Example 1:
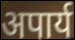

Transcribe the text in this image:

अपार्य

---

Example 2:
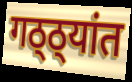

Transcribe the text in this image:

गठ्ठ्यांत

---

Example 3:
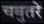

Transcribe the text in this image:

चबुतरे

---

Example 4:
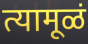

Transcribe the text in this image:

त्यामूळं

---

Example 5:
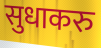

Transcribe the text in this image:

सुधाकरु